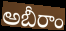
అబీరాం